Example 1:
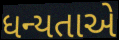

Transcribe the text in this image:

ધન્યતાએ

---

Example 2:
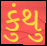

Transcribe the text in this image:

કુંથુ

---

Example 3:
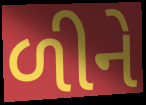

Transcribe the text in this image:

ળીને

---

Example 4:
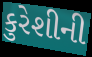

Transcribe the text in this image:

કુરેશીની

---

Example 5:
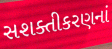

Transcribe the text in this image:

સશક્તીકરણનાં